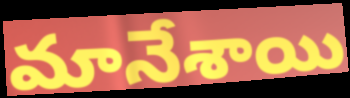
మానేశాయి